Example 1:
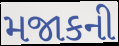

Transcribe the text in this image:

મજાકની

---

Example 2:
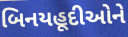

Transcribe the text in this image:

બિનયહૂદીઓને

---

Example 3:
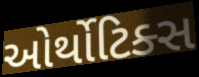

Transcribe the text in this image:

ઓર્થોટિક્સ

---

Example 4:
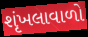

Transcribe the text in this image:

શૃંખલાવાળો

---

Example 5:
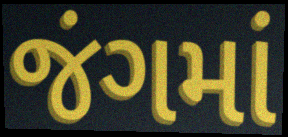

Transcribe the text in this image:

જંગમાં